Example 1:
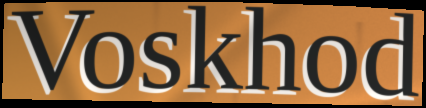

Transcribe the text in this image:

Voskhod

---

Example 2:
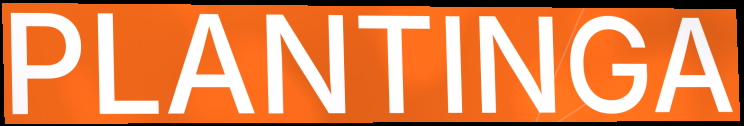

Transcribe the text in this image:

PLANTINGA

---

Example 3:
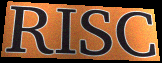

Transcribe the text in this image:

RISC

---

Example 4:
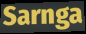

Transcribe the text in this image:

Sarnga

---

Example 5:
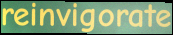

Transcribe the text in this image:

reinvigorate